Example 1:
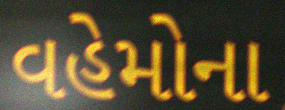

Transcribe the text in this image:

વહેમોના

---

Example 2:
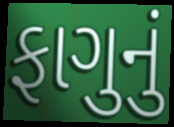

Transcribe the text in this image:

ફાગુનું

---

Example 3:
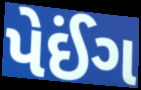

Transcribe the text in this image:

પેઈંગ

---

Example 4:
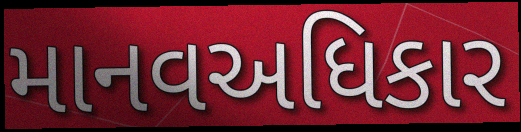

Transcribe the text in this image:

માનવઅધિકાર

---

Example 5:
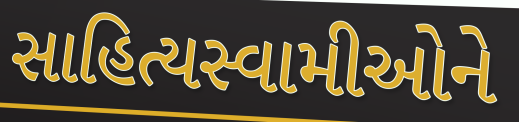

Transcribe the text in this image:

સાહિત્યસ્વામીઓને